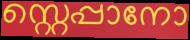
സ്റ്റെപ്പാനോ